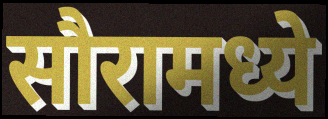
सौरामध्ये